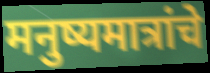
मनुष्यमात्रांचे